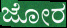
ಜೋರ